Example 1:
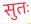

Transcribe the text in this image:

सुतः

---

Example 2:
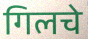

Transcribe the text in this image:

गिलचे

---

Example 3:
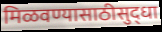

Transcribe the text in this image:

मिळवण्यासाठीसुद्धा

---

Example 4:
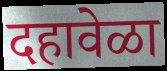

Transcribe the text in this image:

दहावेळा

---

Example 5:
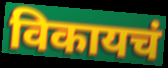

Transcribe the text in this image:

विकायचं